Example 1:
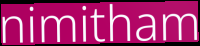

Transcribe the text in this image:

nimitham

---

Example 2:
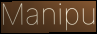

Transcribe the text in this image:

Manipu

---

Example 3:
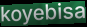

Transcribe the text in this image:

koyebisa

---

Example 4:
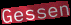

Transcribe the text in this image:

Gessen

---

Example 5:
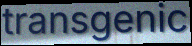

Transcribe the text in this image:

transgenic